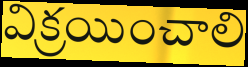
విక్రయించాలి